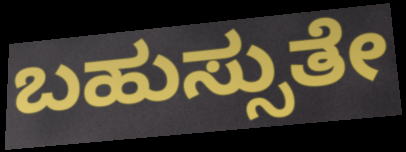
ಬಹುಸ್ಸುತೇ